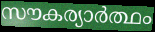
സൗകര്യാർത്ഥം